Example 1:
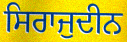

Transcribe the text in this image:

ਸਿਰਾਜੁਦੀਨ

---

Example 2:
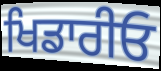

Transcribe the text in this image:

ਖਿਡਾਰੀਓ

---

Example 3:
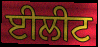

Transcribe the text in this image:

ਈਲੀਟ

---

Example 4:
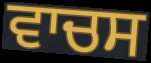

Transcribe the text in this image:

ਵਾਚਸ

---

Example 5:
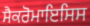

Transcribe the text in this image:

ਸੈਕਰੋਮਾਇਸਿਸ